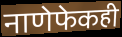
नाणेफेकही